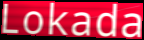
Lokada